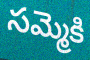
సమ్మెకి